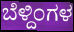
ಬೆಳ್ದಿಂಗಳ